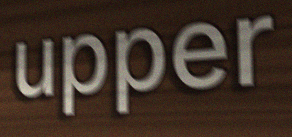
upper